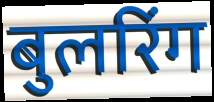
बुलरिंग